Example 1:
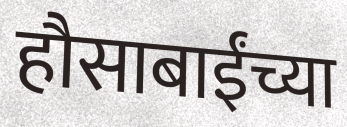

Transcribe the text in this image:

हौसाबाईंच्या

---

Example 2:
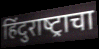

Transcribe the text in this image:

हिंदुराष्ट्राचा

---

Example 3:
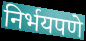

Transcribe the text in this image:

निर्भयपणे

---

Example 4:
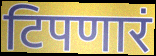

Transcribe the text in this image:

टिपणारं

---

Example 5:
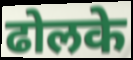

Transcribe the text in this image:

ढोलके